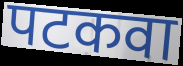
पटकवा